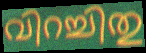
വിറച്ചിതു